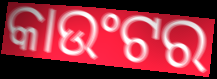
କାଉଂଟର